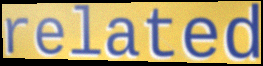
related